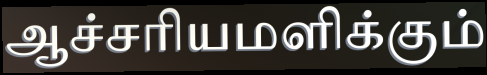
ஆச்சரியமளிக்கும்